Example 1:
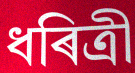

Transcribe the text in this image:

ধৰিত্ৰী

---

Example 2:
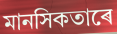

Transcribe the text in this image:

মানসিকতাৰে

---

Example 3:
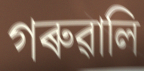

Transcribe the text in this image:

গৰুৱালি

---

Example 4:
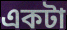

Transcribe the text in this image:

একটা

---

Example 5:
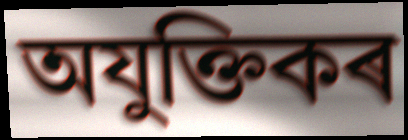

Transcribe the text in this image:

অযুক্তিকৰ